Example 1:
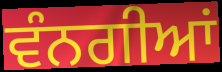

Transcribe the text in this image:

ਵੰਨਗੀਆਂ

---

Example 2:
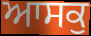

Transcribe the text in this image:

ਆਸਕੁ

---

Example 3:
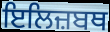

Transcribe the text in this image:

ਇਲਿਜ਼ਬਥ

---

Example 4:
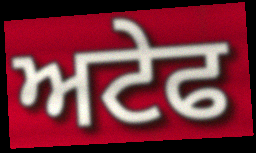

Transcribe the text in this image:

ਅਟੇਫ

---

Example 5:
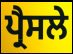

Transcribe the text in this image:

ਪ੍ਰੈਸਲੇ